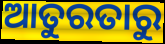
ଆତୁରତାରୁ